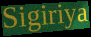
Sigiriya